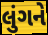
લુંગને